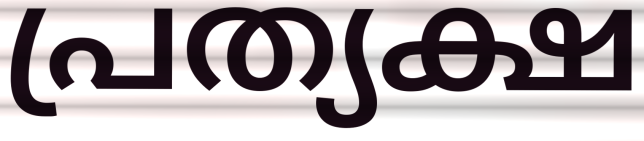
പ്രത്യക്ഷ